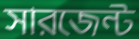
সারজেন্ট